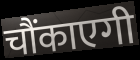
चौंकाएगी